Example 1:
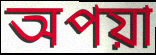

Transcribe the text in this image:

অপয়া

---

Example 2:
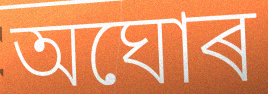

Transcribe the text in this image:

অঘোৰ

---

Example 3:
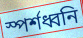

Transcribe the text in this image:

স্পৰ্শধ্বনি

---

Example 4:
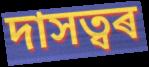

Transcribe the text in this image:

দাসত্বৰ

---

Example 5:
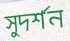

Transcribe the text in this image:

সুদৰ্শন